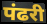
पंढरी